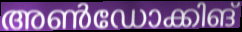
അൺഡോക്കിങ്